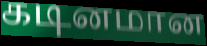
கடினமான